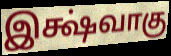
இக்ஷ்வாகு